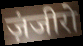
ज़ंजीरो